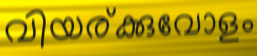
വിയര്ക്കുവോളം